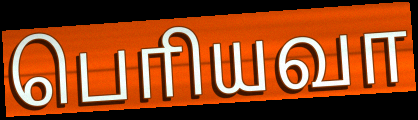
பெரியவா